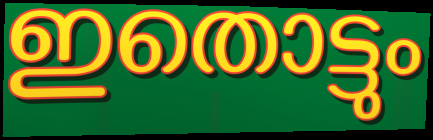
ഇതൊട്ടും